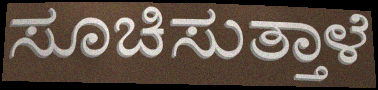
ಸೂಚಿಸುತ್ತಾಳೆ